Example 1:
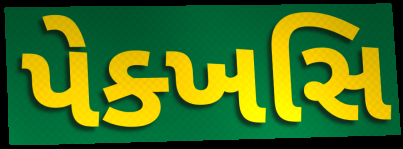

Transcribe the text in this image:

પેક્ખસિ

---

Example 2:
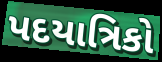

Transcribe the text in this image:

પદયાત્રિકો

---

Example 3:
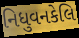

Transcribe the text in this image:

નિધુવનકેલિ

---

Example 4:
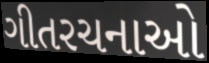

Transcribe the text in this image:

ગીતરચનાઓ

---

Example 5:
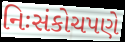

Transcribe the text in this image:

નિઃસંકોચપણે